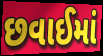
છવાઈમાં